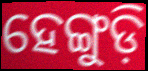
ହେଙ୍ଗୁଡ଼ି